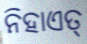
ନିହାଏତ୍